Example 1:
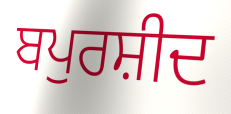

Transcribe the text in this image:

ਬਪੁਰਸ਼ੀਦ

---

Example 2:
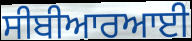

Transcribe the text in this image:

ਸੀਬੀਆਰਆਈ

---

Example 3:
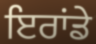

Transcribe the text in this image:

ਇਰਾਂਡੇ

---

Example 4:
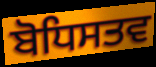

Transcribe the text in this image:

ਬੋਧਿਸਤਵ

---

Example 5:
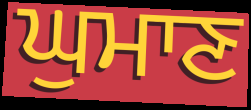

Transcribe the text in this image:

ਘੁਮਾਣ